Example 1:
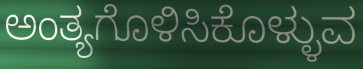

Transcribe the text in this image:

ಅಂತ್ಯಗೊಳಿಸಿಕೊಳ್ಳುವ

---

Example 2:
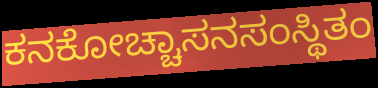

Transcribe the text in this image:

ಕನಕೋಚ್ಚಾಸನಸಂಸ್ಥಿತಂ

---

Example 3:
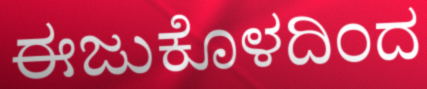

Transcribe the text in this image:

ಈಜುಕೊಳದಿಂದ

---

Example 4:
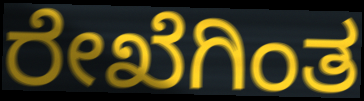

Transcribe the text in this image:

ರೇಖೆಗಿಂತ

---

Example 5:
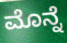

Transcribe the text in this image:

ಮೊನ್ನೆ